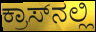
ಕ್ರಾಸ್‌ನಲ್ಲಿ